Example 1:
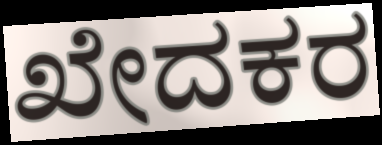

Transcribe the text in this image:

ಖೇದಕರ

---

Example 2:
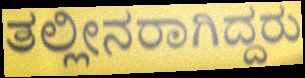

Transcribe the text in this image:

ತಲ್ಲೀನರಾಗಿದ್ದರು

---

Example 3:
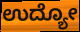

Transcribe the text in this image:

ಉದ್ಯೋ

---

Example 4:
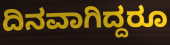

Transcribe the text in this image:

ದಿನವಾಗಿದ್ದರೂ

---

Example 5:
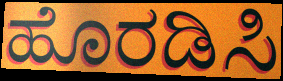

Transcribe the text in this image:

ಹೊರಡಿಸಿ